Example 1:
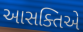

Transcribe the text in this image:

આસક્તિએ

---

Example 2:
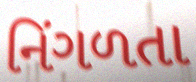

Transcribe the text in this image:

નિંગળતા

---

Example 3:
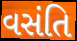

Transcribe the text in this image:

વસંતિ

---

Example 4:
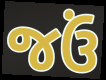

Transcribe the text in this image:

જઉં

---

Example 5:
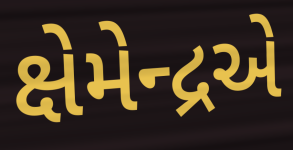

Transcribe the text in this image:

ક્ષેમેન્દ્રએ